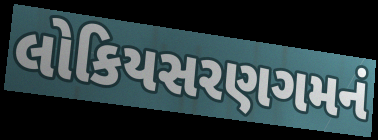
લોકિયસરણગમનં